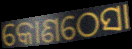
କୋଣଠେସା